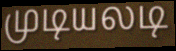
முடியலடி